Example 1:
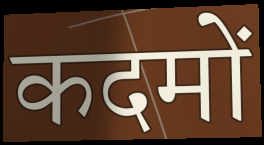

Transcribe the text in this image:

कदमों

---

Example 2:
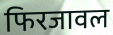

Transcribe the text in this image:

फिरजावल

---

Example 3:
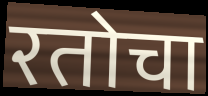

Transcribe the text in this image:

रतोचा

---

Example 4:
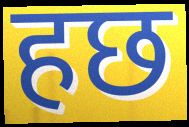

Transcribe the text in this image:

हछ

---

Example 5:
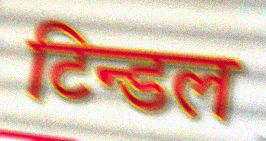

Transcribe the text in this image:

टिन्डल